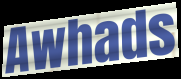
Awhads